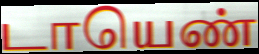
டாயெண்